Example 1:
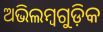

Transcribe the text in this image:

ଅଭିଲମ୍ବଗୁଡ଼ିକ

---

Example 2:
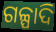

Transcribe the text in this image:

ଗଳ୍ପାଦି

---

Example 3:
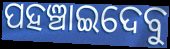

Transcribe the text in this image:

ପହଞ୍ଚାଇଦେବୁ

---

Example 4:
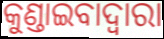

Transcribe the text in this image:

କୁଣ୍ଡାଇବାଦ୍ୱାରା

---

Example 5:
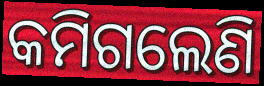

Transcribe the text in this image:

କମିଗଲେଣି